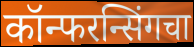
कॉन्फरन्सिंगचा